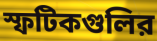
স্ফটিকগুলির